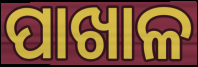
ପାଖାଳ